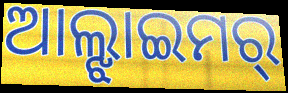
ଆଲ୍ଝାଇମର୍